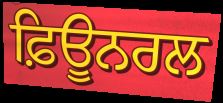
ਫ਼ਿਊਨਰਲ